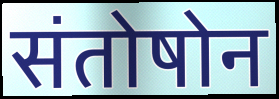
संतोषोन